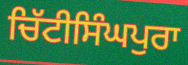
ਚਿੱਟੀਸਿੰਘਪੁਰਾ